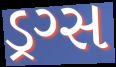
ડ્રગ્સ